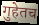
गुहेतच